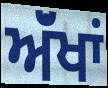
ਅੱਂਖਾਂ